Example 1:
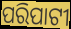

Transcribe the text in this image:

ପରିପାଟୀ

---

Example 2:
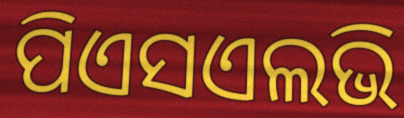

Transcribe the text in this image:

ପିଏସଏଲଭି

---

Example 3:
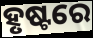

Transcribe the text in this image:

ହୃଷ୍ଟରେ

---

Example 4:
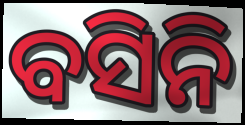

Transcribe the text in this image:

ବସିନି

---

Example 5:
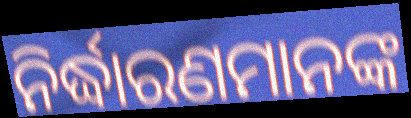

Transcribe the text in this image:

ନିର୍ଦ୍ଧାରଣମାନଙ୍କ